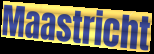
Maastricht